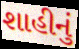
શાહીનું